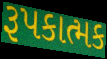
રૂપકાત્મક